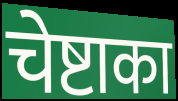
चेष्टाका